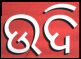
ଉଦି